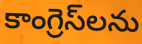
కాంగ్రెస్‌లను